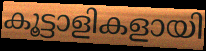
കൂട്ടാളികളായി